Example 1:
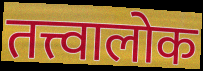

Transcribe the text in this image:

तत्त्वालोक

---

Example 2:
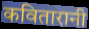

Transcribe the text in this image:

कवितारानी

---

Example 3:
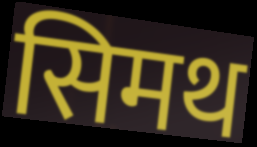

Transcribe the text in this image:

सिमथ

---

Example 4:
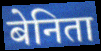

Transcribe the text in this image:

बेनिता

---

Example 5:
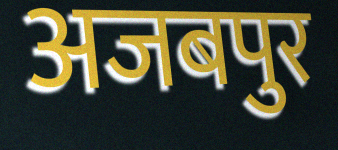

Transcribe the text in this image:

अजबपुर